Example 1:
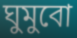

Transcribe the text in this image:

ঘুমুবো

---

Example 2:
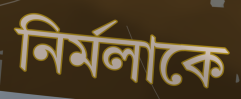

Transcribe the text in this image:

নির্মলাকে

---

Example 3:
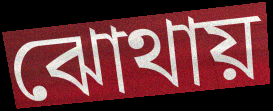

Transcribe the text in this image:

ঝোথায়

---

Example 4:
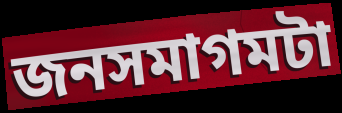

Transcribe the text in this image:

জনসমাগমটা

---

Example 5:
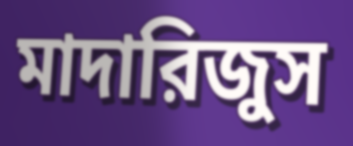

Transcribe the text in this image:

মাদারিজুস